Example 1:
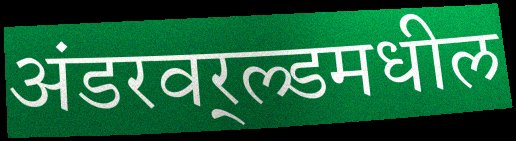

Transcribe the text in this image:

अंडरवर्ल्डमधील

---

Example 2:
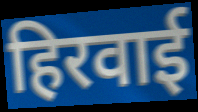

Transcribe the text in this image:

हिरवाई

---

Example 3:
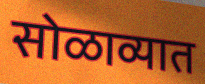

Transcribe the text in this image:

सोळाव्यात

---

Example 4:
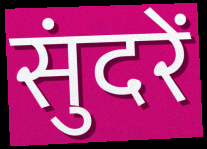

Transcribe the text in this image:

सुंदरें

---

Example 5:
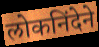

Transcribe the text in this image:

लोकनिंदेने